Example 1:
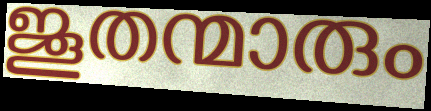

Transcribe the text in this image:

ജൂതന്മാരും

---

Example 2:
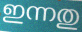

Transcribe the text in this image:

ഇന്നതു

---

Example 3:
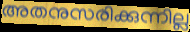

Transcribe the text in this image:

അതനുസരിക്കുന്നില്ല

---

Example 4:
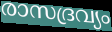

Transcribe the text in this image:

രാസദ്രവ്യം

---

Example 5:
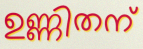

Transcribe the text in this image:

ഉണ്ണിതന്